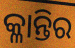
କ୍ଳାନ୍ତିର